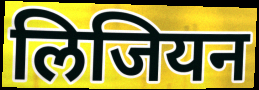
लिजियन